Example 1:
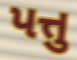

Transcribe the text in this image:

પત્તુ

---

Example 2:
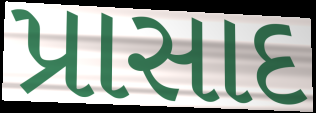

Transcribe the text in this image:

પ્રાસાદ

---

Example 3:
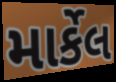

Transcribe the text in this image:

માર્કેલ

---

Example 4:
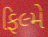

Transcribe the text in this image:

ફિલ્મે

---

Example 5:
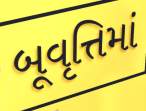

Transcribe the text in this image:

બૂવૃત્તિમાં